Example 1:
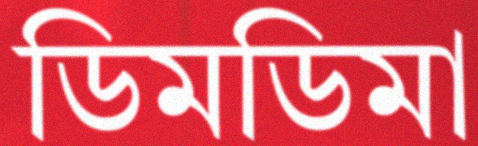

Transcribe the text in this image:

ডিমডিমা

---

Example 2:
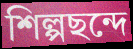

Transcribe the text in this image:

শিল্পছন্দে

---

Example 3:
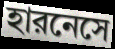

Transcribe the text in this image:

হারনেসে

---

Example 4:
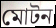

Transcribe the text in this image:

মোটন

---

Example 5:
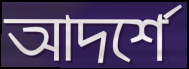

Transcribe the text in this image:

আদর্শে